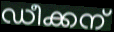
ഡീക്കന്